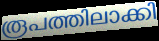
രൂപത്തിലാക്കി